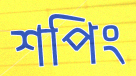
শপিং